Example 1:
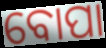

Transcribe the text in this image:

ବୋପା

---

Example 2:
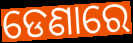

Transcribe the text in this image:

ଡେଣାରେ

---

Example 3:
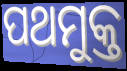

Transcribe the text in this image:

ପଥମୁକ୍ତ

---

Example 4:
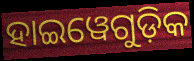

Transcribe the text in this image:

ହାଇୱେଗୁଡ଼ିକ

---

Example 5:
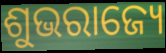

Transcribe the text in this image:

ଶୁଭରାଜ୍ୟେ